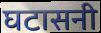
घटासनी